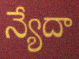
న్యేదా